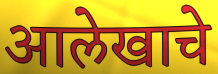
आलेखाचे